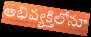
అభివ్యక్తిలోనూ